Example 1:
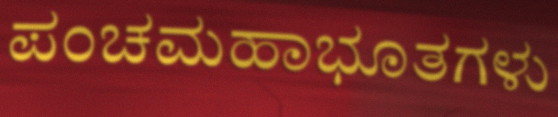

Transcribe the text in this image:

ಪಂಚಮಹಾಭೂತಗಳು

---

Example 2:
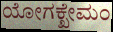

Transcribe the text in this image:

ಯೋಗಕ್ಖೇಮಂ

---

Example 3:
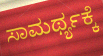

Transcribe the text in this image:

ಸಾಮರ್ಥ್ಯಕ್ಕೆ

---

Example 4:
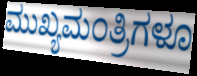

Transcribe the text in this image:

ಮುಖ್ಯಮಂತ್ರಿಗಳೂ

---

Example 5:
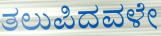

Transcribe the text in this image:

ತಲುಪಿದವಳೇ